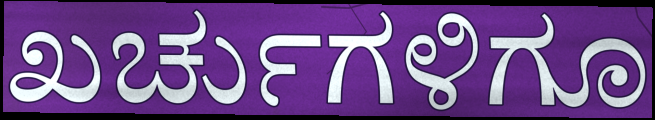
ಖರ್ಚುಗಳಿಗೂ